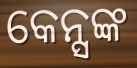
କେନ୍ସଙ୍କ